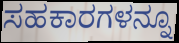
ಸಹಕಾರಗಳನ್ನೂ